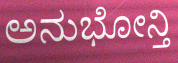
ಅನುಭೋನ್ತಿ